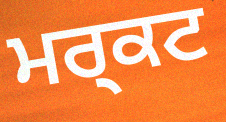
ਮਰ੍ਕਟ